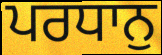
ਪਰਧਾਨੁ